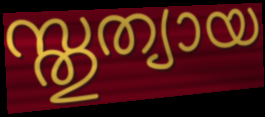
സ്തുത്യായ